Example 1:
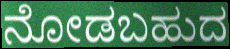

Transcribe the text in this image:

ನೋಡಬಹುದ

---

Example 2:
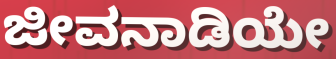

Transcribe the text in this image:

ಜೀವನಾಡಿಯೇ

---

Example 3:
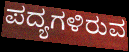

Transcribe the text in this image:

ಪದ್ಯಗಳಿರುವ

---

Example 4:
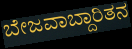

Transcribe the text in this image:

ಬೇಜವಾಬ್ದಾರಿತನ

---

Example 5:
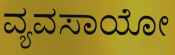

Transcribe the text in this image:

ವ್ಯವಸಾಯೋ